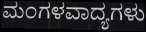
ಮಂಗಳವಾದ್ಯಗಳು